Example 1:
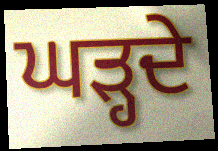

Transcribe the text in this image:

ਘੜ੍ਹਦੇ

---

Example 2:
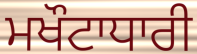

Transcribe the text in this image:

ਮਖੌਟਾਧਾਰੀ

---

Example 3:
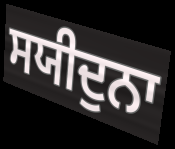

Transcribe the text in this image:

ਸਯੀਦੁਨਾ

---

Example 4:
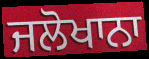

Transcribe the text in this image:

ਜਲੋਖਾਨਾ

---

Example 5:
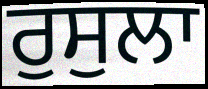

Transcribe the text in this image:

ਰੁਸੁਲਾ